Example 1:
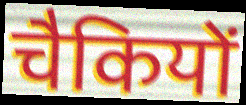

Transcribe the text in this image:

चैकियों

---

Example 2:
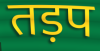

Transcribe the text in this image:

तड़प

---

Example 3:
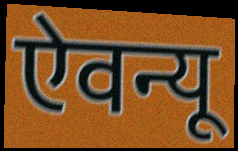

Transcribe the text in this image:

ऐवन्यू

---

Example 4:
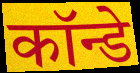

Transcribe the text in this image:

कॉन्डे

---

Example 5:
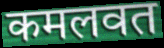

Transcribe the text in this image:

कमलवत